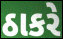
ઠાકરે